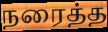
நரைத்த